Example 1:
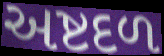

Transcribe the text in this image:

અષ્ટદળ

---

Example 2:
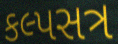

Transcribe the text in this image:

કલ્પસત્ર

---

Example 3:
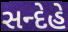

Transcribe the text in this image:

સન્દેહે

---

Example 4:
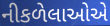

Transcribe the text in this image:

નીકળેલાઓએ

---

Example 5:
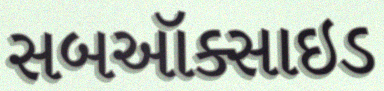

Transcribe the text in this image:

સબઑક્સાઇડ